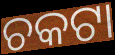
ଚକଟା